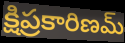
క్షిప్రకారిణమ్